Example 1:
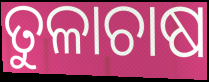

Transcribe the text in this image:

ତୁଳାଚାଷ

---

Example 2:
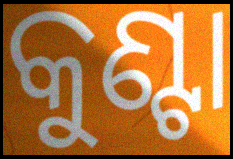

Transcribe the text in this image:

କୁଣ୍ଟା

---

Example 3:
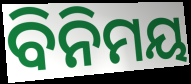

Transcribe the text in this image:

ବିନିମୟ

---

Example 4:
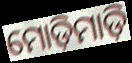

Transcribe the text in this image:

ମୋଡ଼ିମାଡ଼ି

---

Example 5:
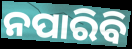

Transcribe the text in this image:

ନପାରିବି